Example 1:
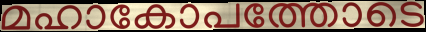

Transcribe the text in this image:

മഹാകോപത്തോടെ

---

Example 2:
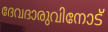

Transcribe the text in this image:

ദേവദാരുവിനോട്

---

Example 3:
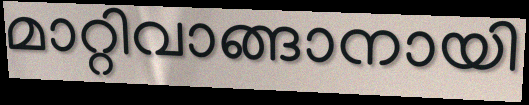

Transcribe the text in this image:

മാറ്റിവാങ്ങാനായി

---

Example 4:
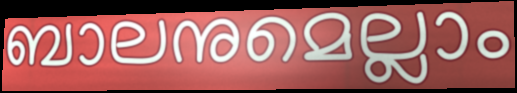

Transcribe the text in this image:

ബാലനുമെല്ലാം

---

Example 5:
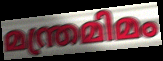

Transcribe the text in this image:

മന്ത്രമിമം